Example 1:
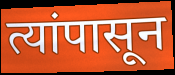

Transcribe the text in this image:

त्यांपासून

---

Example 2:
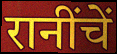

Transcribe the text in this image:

रानींचें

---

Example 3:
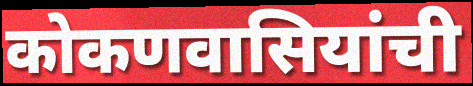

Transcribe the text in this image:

कोकणवासियांची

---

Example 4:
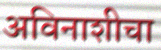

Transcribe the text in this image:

अविनाशीचा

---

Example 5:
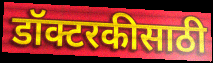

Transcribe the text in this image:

डॉक्टरकीसाठी